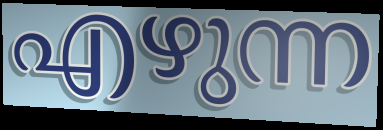
എഴുന്ന